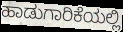
ಹಾಡುಗಾರಿಕೆಯಲ್ಲಿ